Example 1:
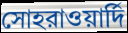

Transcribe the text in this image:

সোহরাওয়ার্দি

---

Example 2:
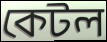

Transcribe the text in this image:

কেটল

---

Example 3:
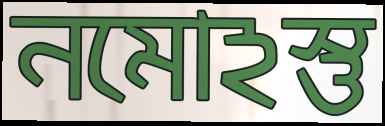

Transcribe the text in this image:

নমোঽস্তু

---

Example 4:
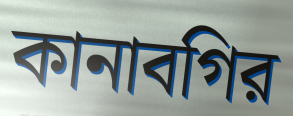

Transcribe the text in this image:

কানাবগির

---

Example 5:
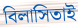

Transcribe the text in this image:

বিলাসিতাই